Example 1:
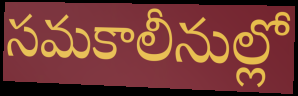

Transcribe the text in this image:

సమకాలీనుల్లో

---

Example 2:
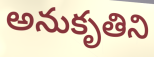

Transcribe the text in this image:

అనుకృతిని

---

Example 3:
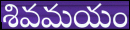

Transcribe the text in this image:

శివమయం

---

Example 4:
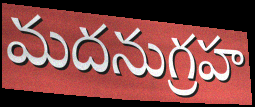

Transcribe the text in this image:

మదనుగ్రహ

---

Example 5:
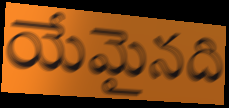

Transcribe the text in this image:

యేమైనది